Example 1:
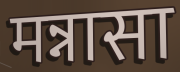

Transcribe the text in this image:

मन्नासा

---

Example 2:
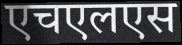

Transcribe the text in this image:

एचएलएस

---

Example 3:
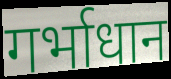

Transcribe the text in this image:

गर्भाधान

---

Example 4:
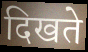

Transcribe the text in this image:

दिखते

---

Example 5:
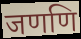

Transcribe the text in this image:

जणणि